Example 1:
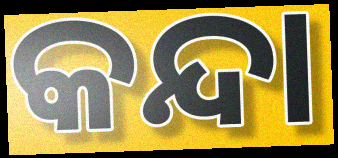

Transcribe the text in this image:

କନ୍ଦା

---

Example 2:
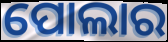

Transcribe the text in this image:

ପୋଲାର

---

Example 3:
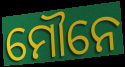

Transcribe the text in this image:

ମୌନେ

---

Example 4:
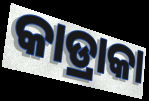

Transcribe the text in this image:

କାଡ୍ରାକା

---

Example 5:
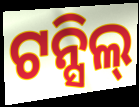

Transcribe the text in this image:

ଟନ୍ସିଲ୍